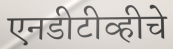
एनडीटीव्हीचे